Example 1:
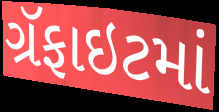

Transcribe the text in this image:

ગ્રૅફાઇટમાં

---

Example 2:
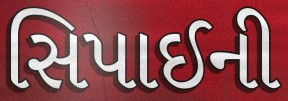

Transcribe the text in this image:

સિપાઈની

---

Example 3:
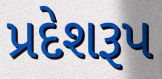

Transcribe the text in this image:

પ્રદેશરૂપ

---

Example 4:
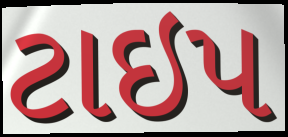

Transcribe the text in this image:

ટાઇપ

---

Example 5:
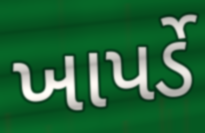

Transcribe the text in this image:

ખાપર્ડે